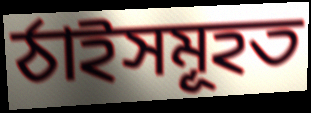
ঠাইসমূহত